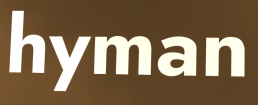
hyman